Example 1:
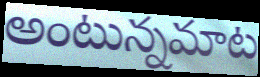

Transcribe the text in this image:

అంటున్నమాట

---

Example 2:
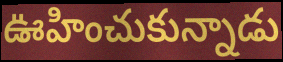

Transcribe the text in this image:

ఊహించుకున్నాడు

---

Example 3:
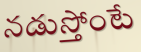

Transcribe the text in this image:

నడుస్తోంటే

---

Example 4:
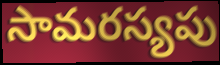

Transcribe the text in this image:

సామరస్యపు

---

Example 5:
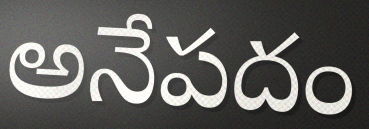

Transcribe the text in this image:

అనేపదం